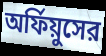
অর্ফিয়ুসের